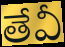
తేవీ